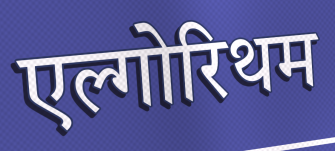
एल्गोरिथम